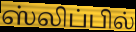
ஸ்லிப்பில்